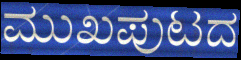
ಮುಖಪುಟದ